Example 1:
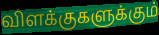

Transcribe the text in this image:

விளக்குகளுக்கும்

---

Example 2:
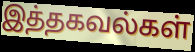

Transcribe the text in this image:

இத்தகவல்கள்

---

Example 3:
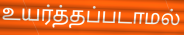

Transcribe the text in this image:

உயர்த்தப்படாமல்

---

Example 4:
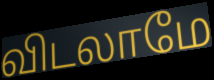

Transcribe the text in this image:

விடலாமே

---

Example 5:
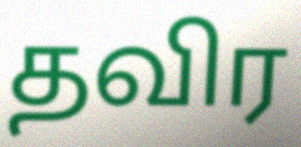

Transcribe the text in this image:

தவிர